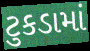
ટુકડામાં